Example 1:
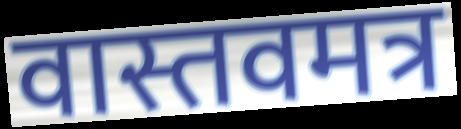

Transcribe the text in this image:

वास्तवमत्र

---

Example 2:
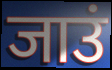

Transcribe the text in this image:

जाउं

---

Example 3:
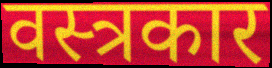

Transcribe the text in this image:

वस्त्रकार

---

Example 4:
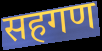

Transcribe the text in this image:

सहगण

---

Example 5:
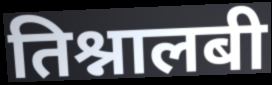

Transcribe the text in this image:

तिश्नालबी